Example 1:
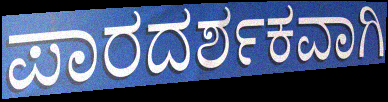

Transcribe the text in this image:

ಪಾರದರ್ಶಕವಾಗಿ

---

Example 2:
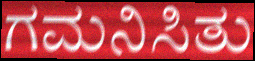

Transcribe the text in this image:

ಗಮನಿಸಿತು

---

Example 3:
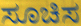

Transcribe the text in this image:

ಸೂಚಿಸ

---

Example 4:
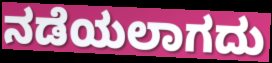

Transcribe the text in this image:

ನಡೆಯಲಾಗದು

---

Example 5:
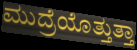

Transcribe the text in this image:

ಮುದ್ರೆಯೊತ್ತುತ್ತಾ